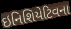
ઇનિશિયેટિવના